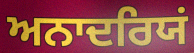
ਅਨਾਦਰਿਯਂ